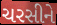
ચરસીને